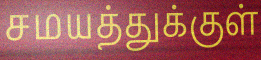
சமயத்துக்குள்